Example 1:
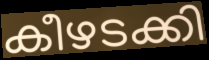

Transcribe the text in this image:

കീഴടക്കി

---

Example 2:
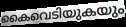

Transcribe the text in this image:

കൈവെടിയുകയും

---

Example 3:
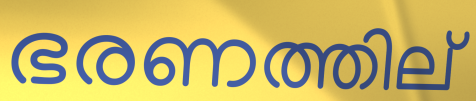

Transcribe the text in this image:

ഭരണത്തില്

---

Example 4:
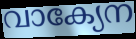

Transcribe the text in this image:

വാക്യേന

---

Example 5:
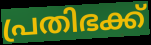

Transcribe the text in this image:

പ്രതിഭക്ക്